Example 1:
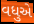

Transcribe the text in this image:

વધુએ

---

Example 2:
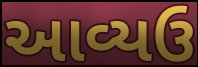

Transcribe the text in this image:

આવ્યઉ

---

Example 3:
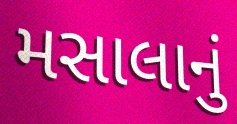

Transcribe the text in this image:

મસાલાનું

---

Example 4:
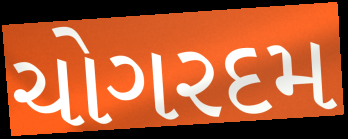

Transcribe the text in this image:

ચોગરદમ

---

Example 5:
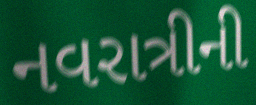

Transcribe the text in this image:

નવરાત્રીની